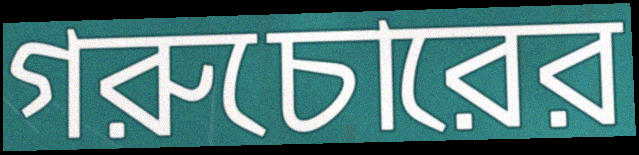
গরুচোরের